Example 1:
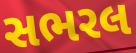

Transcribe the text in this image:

સભરલ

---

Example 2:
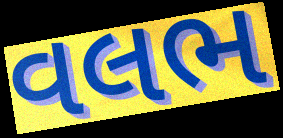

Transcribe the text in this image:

વલભ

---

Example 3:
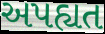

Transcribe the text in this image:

અપહ્યત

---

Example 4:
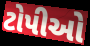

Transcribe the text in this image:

ટોપીઓ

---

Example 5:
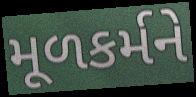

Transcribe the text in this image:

મૂળકર્મને